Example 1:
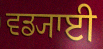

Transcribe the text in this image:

ਵਡ੍ਯਾਈ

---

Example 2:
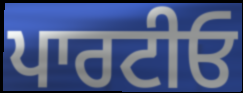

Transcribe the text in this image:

ਪਾਰਟੀਓ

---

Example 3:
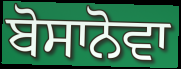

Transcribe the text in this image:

ਬੋਸਾਨੋਵਾ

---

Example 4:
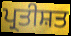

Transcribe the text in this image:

ਪ੍ਰਤੀਸ਼ਤ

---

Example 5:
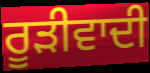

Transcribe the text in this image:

ਰੂੜੀਵਾਦੀ